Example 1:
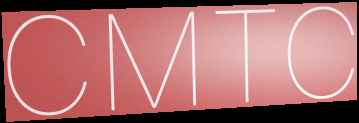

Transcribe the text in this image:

CMTC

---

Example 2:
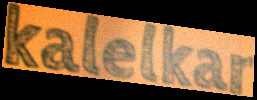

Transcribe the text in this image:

kalelkar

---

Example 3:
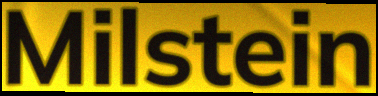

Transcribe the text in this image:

Milstein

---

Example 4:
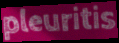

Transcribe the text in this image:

pleuritis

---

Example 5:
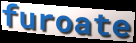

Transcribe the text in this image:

furoate